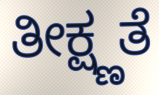
ತೀಕ್ಷ್ಣತೆ